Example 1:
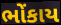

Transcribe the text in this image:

ભોંકાય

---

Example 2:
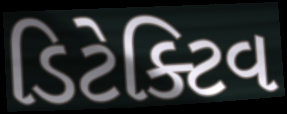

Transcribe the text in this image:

ડિટેક્ટિવ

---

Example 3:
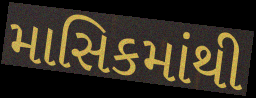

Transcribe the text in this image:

માસિકમાંથી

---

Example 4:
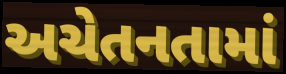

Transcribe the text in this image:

અચેતનતામાં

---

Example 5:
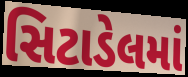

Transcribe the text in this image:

સિટાડેલમાં